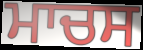
ਮਾਚਸ